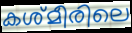
കശ്മീരിലെ